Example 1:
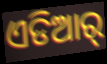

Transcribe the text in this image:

ଏଡିଆର୍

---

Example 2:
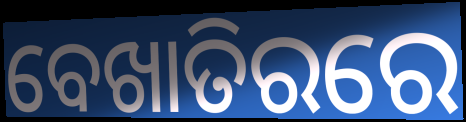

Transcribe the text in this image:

ବେଖାତିରରେ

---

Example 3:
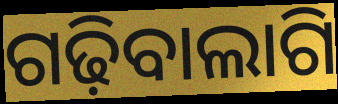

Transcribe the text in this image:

ଗଢ଼ିବାଲାଗି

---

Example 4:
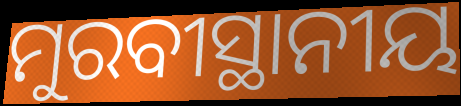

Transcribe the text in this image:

ମୁରବୀସ୍ଥାନୀୟ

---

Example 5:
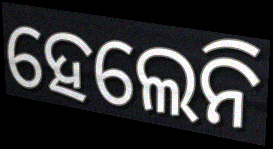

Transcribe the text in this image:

ହେଲେନି